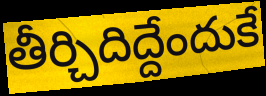
తీర్చిదిద్దేందుకే